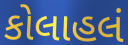
કોલાહલં